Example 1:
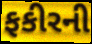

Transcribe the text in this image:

ફકીરની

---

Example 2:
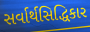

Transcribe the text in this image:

સર્વાર્થસિદ્ધિકાર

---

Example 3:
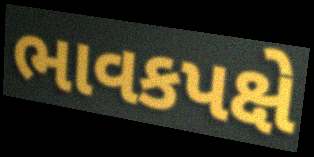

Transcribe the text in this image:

ભાવકપક્ષે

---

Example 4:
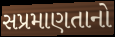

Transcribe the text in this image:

સપ્રમાણતાનો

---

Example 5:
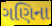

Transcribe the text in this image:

ગણિના